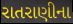
રાતરાણીના